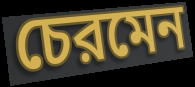
চেরমেন